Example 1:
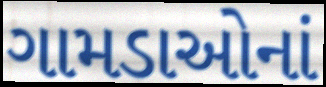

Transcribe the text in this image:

ગામડાઓનાં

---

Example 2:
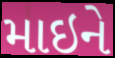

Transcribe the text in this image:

માઇને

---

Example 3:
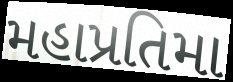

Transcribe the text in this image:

મહાપ્રતિમા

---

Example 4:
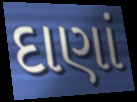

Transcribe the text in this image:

દાણાં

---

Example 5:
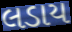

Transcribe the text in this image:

લડાય